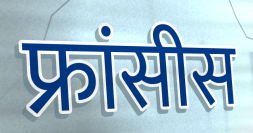
फ्रांसीस